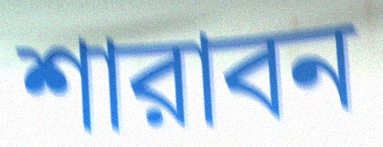
শারাবন